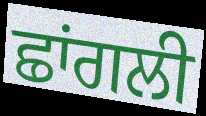
ਛਾਂਗਲੀ